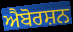
ਐਬੋਰਸ਼ਨ